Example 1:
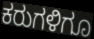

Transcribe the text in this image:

ಕರುಗಳಿಗೂ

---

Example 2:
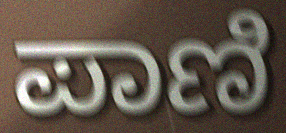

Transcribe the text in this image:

ಪಾಣಿ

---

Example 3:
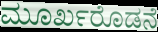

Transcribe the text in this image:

ಮೂರ್ಖರೊಡನೆ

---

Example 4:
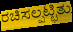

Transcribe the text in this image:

ರಚಿಸಲ್ಪಟ್ಟಿತು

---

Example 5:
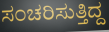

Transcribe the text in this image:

ಸಂಚರಿಸುತ್ತಿದ್ದ